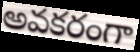
అవకరంగా